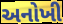
અનોખી